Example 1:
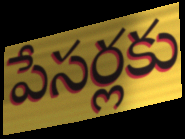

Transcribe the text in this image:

పేసర్లకు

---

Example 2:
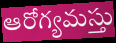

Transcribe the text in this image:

ఆరోగ్యమస్తు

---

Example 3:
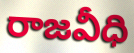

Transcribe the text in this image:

రాజవీధి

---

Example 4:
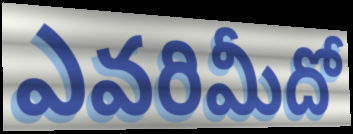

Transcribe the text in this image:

ఎవరిమీదో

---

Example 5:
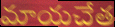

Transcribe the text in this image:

మాయచేత